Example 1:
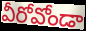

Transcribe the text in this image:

వీరోవోండా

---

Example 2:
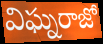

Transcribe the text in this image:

విఘ్నరాజో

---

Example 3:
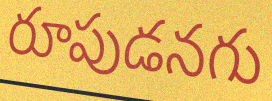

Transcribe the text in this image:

రూపుడనగు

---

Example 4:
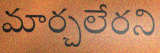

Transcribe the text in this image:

మార్చలేరని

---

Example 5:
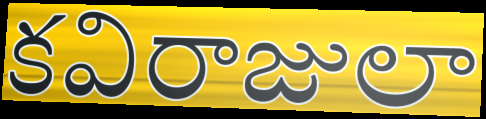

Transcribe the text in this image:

కవిరాజులా